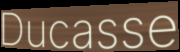
Ducasse